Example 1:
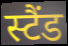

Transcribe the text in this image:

स्टैंड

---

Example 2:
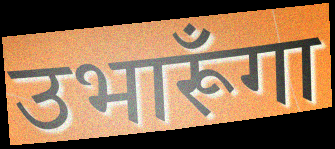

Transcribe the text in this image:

उभारूँगा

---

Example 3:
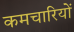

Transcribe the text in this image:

कमचारियों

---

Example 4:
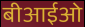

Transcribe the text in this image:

बीआईओ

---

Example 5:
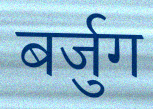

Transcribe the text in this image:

बर्जुग